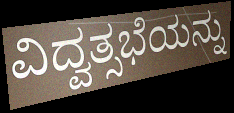
ವಿದ್ವತ್ಸಭೆಯನ್ನು